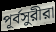
পূর্বসুরীরা